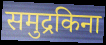
समुद्रकिना